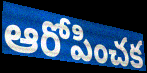
ఆరోపించక